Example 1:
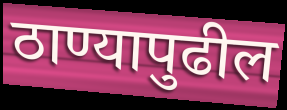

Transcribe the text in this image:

ठाण्यापुढील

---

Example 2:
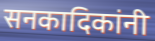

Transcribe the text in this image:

सनकादिकांनी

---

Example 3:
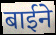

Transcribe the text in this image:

बाईने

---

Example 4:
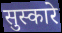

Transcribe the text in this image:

सुस्कारे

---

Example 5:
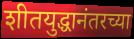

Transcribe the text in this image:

शीतयुद्धानंतरच्या